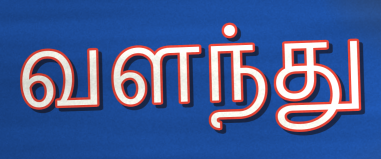
வளந்து